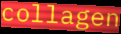
collagen